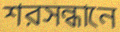
শরসন্ধানে